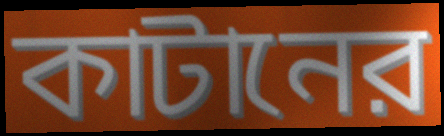
কাটানের